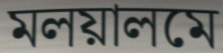
মলয়ালমে